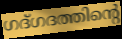
ഗദ്ഗദത്തിന്റെ